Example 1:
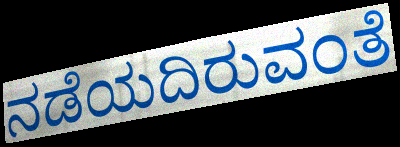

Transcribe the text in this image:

ನಡೆಯದಿರುವಂತೆ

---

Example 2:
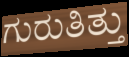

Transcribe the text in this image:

ಗುರುತಿತ್ತು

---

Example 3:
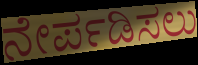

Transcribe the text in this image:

ನೇರ್ಪಡಿಸಲು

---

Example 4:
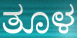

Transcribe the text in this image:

ತೂಳ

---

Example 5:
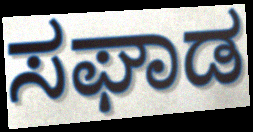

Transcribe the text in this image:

ಸಘಾಡ